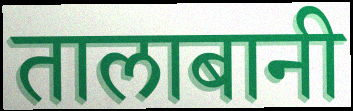
तालाबानी